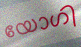
യോഗി